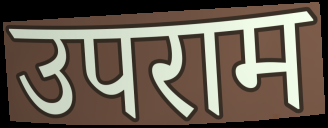
उपराम